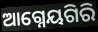
ଆଗ୍ନେୟଗିରି